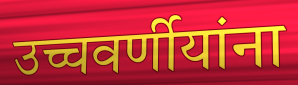
उच्चवर्णीयांना